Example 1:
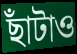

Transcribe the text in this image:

ছাঁটাও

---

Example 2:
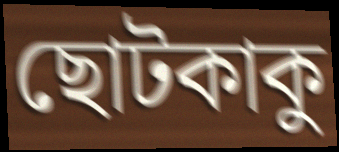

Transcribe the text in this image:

ছোটকাকু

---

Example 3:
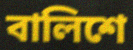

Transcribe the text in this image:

বালিশে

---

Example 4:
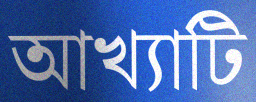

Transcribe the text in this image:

আখ্যাটি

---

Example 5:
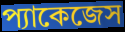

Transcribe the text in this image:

প্যাকেজেস